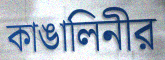
কাঙালিনীর